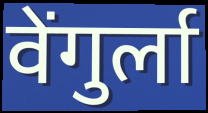
वेंगुर्ला